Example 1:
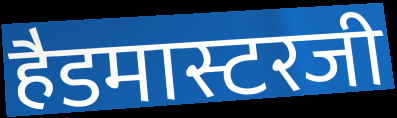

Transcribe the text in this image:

हैडमास्टरजी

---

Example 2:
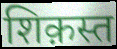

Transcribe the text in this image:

शिक़स्त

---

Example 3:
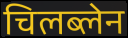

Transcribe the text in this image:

चिलब्लेन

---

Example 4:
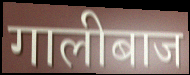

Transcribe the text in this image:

गालीबाज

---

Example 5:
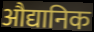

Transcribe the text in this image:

औद्यानिक